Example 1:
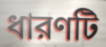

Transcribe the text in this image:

ধারণটি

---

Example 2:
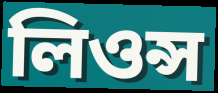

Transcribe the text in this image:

লিওন্স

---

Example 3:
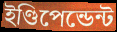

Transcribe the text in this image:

ইণ্ডিপেন্ডেন্ট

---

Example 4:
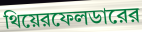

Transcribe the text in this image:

থিয়েরফেলডারের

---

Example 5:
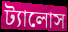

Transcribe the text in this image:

ট্যালোস